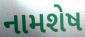
નામશેષ